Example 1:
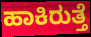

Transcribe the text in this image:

ಹಾಕಿರುತ್ತೆ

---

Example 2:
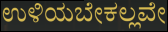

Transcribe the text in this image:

ಉಳಿಯಬೇಕಲ್ಲವೇ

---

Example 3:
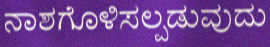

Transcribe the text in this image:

ನಾಶಗೊಳಿಸಲ್ಪಡುವುದು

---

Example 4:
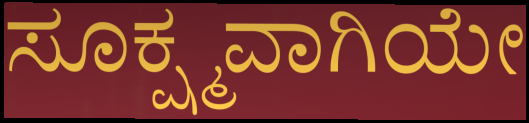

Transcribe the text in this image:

ಸೂಕ್ಷ್ಮವಾಗಿಯೇ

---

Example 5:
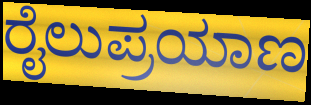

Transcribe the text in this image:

ರೈಲುಪ್ರಯಾಣ